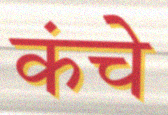
कंचे